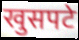
खुसपटे